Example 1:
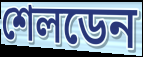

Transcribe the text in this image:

শেলডেন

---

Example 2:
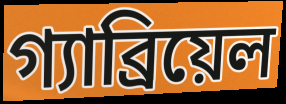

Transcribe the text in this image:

গ্যাব্রিয়েল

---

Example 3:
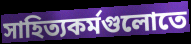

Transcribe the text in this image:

সাহিত্যকর্মগুলোতে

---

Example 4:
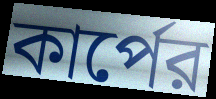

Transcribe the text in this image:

কার্পের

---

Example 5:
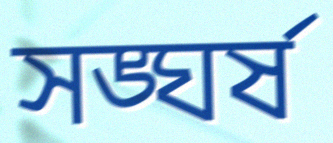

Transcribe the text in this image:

সঙ্ঘর্ষ